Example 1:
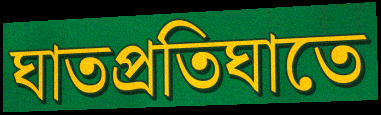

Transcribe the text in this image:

ঘাতপ্রতিঘাতে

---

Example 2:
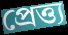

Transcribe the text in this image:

প্রেত্ত্য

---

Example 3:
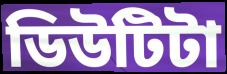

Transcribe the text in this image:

ডিউটিটা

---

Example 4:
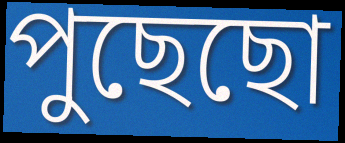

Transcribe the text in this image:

পুছেছো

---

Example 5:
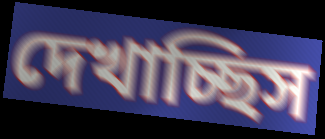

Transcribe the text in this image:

দেখাচ্ছিস